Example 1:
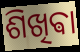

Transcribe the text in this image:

ଶିଖିଵା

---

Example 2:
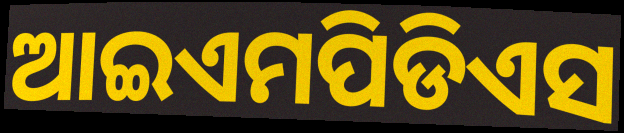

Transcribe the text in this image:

ଆଇଏମପିଡିଏସ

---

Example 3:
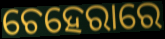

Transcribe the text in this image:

ଚେହେରାରେ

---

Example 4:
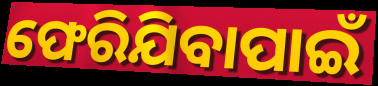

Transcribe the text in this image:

ଫେରିଯିବାପାଇଁ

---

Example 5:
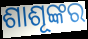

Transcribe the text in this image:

ଶାଶୂଙ୍କର